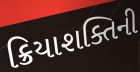
ક્રિયાશક્તિની